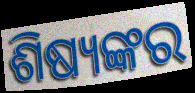
ଶିଷ୍ୟଙ୍କର